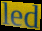
led